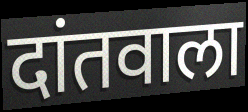
दांतवाला